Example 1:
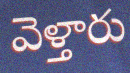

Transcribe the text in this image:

వెళ్తారు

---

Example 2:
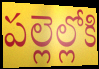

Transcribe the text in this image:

పల్లెల్లోకి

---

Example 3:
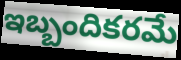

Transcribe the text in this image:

ఇబ్బందికరమే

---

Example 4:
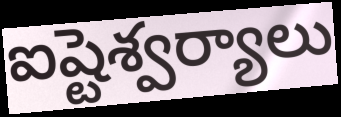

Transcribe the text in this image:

ఐష్టెశ్వర్యాలు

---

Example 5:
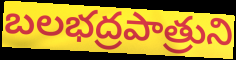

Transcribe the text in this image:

బలభద్రపాత్రుని